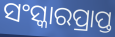
ସଂସ୍କାରପ୍ରାପ୍ତ